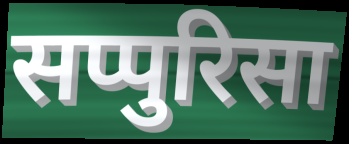
सप्पुरिसा